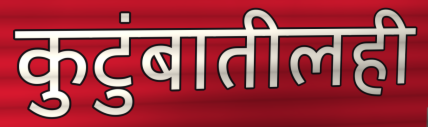
कुटुंबातीलही